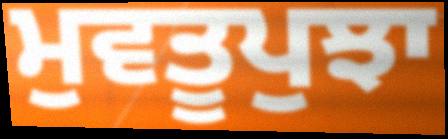
ਮੁਵਤੂਪੁਝਾ